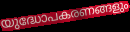
യുദ്ധോപകരണങ്ങളും